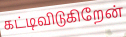
கட்டிவிடுகிறேன்